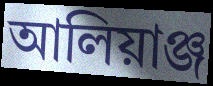
আলিয়াঞ্জ